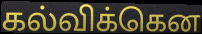
கல்விக்கென